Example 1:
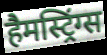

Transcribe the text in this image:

हैमस्ट्रिंग्स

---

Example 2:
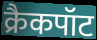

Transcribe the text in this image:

क्रैकपॉट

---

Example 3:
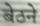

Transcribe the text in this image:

बेठने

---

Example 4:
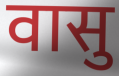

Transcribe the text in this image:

वासु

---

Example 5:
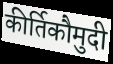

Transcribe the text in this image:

कीर्तिकौमुदी